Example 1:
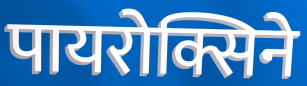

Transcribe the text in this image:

पायरोक्सिने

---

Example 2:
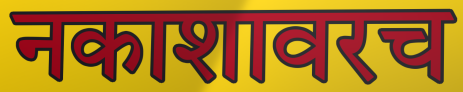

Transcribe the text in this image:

नकाशावरच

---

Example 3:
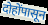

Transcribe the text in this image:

दोहोंपासून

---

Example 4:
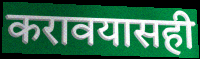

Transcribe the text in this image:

करावयासही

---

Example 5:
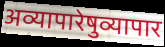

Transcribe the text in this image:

अव्यापारेषुव्यापार